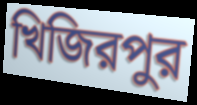
খিজিরপুর